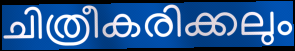
ചിത്രീകരിക്കലും